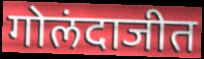
गोलंदाजीत